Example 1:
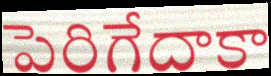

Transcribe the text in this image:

పెరిగేదాకా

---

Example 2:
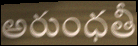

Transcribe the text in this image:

అరుంధతీ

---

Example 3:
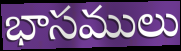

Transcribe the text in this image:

భాసములు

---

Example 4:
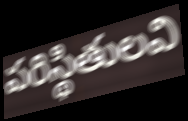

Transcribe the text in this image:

పరిస్థితులవి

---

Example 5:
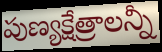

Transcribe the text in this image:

పుణ్యక్షేత్రాలన్నీ